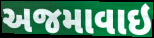
અજમાવાઇ